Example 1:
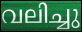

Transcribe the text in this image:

വലിച്ചു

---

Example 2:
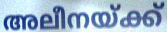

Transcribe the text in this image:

അലീനയ്ക്ക്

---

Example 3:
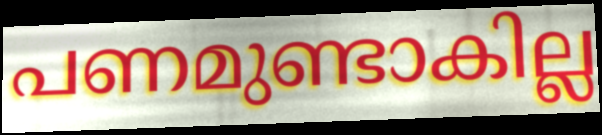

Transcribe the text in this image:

പണമുണ്ടാകില്ല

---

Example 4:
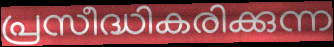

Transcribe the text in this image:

പ്രസീദ്ധികരിക്കുന്ന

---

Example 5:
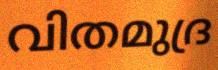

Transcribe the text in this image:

വിതമുദ്ര